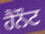
ਹੈਨੌਟ